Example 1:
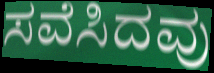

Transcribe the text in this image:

ಸವೆಸಿದವು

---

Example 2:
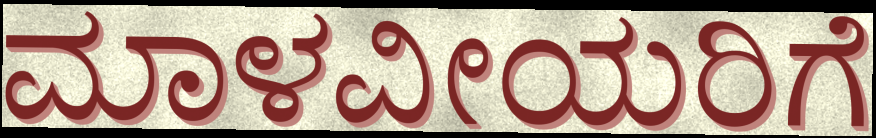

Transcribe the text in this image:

ಮಾಳವೀಯರಿಗೆ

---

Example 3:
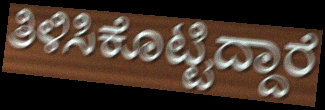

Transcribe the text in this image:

ತಿಳಿಸಿಕೊಟ್ಟಿದ್ದಾರೆ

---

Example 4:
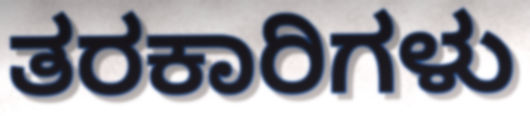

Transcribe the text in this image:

ತರಕಾರಿಗಳು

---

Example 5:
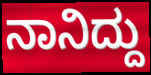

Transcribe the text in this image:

ನಾನಿದ್ದು